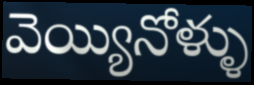
వెయ్యినోళ్ళు